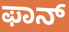
ಫಾನ್